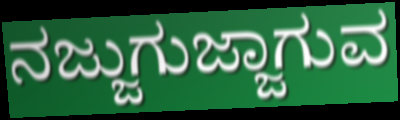
ನಜ್ಜುಗುಜ್ಜಾಗುವ